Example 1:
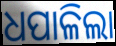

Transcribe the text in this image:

ଧପାଳିଲା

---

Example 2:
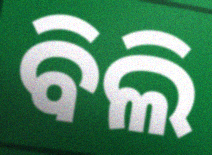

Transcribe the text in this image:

ବିଲି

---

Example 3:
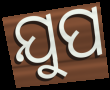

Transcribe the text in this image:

ଯୁପ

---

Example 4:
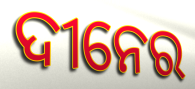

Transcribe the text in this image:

ଦୀନେର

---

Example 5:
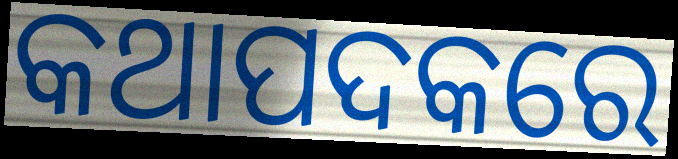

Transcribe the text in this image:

କଥାପଦକରେ